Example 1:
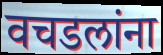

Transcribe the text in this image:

वचडलांना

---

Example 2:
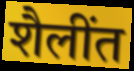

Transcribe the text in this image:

शैलींत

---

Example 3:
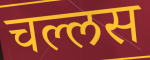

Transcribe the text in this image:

चल्लस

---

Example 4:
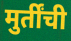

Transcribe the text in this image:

मुर्तींची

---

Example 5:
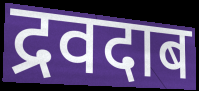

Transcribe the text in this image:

द्रवदाब